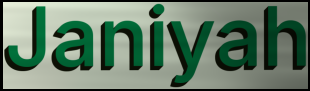
Janiyah